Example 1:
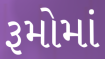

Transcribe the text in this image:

રૂમોમાં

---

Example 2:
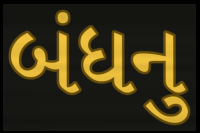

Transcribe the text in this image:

બંધનુ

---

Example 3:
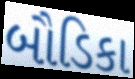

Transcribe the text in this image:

બૌડિકા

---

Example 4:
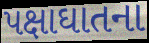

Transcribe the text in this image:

પક્ષાઘાતના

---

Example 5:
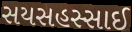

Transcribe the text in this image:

સયસહસ્સાઈ